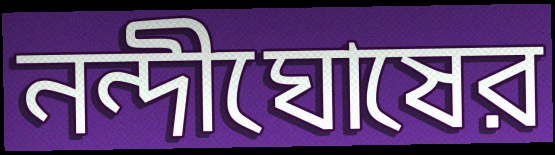
নন্দীঘোষের